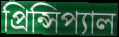
প্রিন্সিপ্যাল